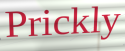
Prickly